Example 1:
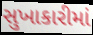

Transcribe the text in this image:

સુખાકારીમાં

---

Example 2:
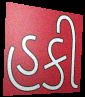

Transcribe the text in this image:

હકી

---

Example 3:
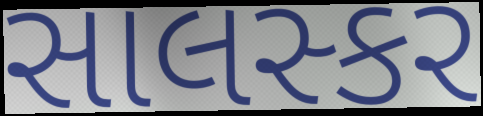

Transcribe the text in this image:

સાલસ્કર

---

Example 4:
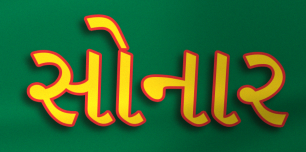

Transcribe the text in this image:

સોનાર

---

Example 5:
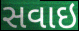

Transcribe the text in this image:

સવાઇ